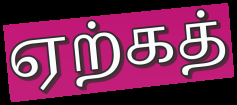
ஏற்கத்